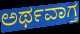
ಅರ್ಥವಾಗ್ತ